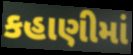
કહાણીમાં